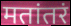
मतांतरं